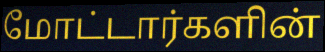
மோட்டார்களின்